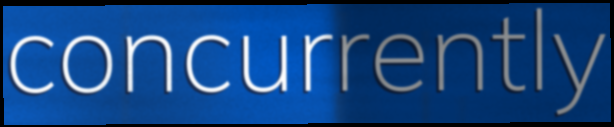
concurrently